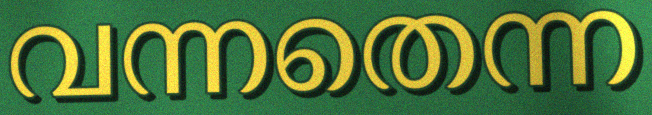
വന്നതെന്ന